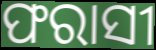
ଫରାସୀ